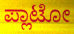
ಪ್ಲಾಟೋ